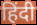
हिंदी